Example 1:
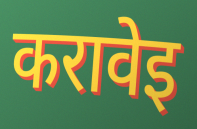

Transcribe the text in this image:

करावेइ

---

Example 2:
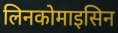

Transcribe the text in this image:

लिनकोमाइसिन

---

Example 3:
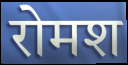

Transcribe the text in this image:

रोमश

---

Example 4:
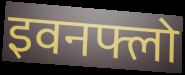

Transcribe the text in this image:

इवनफ्लो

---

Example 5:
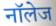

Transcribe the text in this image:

नॉलेज